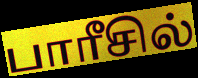
பாரீசில்